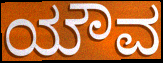
ಯೌವ